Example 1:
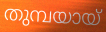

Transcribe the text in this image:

തുമ്പയായ്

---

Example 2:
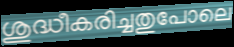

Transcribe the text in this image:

ശുദ്ധീകരിച്ചതുപോലെ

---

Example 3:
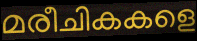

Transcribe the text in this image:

മരീചികകളെ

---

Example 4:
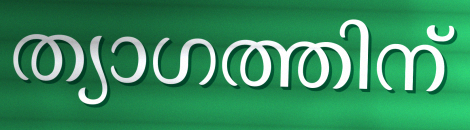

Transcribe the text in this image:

ത്യാഗത്തിന്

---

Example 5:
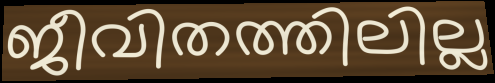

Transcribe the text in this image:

ജീവിതത്തിലില്ല